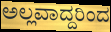
ಅಲ್ಲವಾದ್ದರಿಂದ